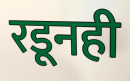
रडूनही